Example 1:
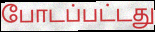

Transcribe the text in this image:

போடப்பட்டது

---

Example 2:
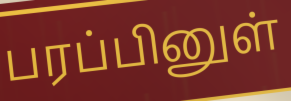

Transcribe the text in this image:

பரப்பினுள்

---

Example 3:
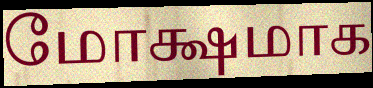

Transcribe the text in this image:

மோக்ஷமாக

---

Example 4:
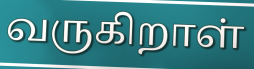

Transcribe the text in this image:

வருகிறாள்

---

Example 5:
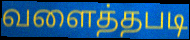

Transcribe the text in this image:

வளைத்தபடி